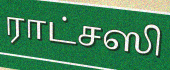
ராட்சஸி